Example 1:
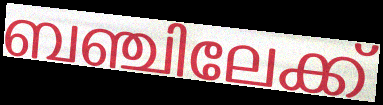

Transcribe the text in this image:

ബഞ്ചിലേക്ക്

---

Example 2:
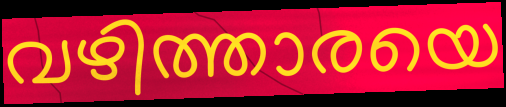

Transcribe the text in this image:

വഴിത്താരയെ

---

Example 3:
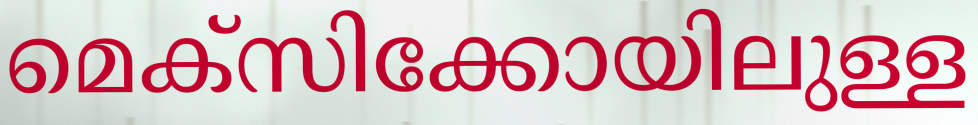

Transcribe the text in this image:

മെക്സിക്കോയിലുള്ള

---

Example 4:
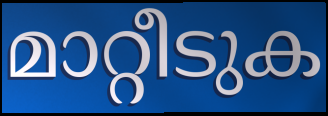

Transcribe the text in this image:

മാറ്റീടുക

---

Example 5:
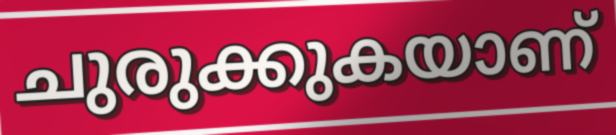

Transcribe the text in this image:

ചുരുക്കുകയാണ്